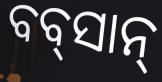
ବବ୍‌ସାନ୍